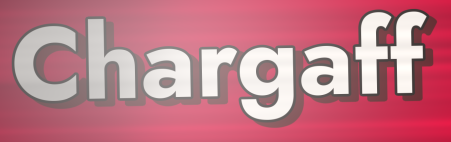
Chargaff